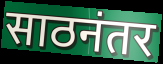
साठनंतर